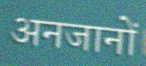
अनजानों